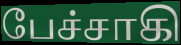
பேச்சாகி